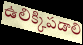
ఉలిక్కిపడాలి